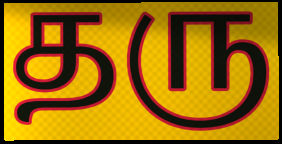
தரு